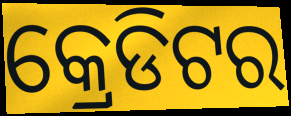
କ୍ରେଡିଟର